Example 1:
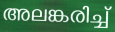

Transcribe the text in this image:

അലങ്കരിച്ച്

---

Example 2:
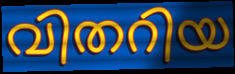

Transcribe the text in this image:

വിതറിയ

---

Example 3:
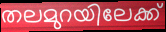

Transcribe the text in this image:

തലമുറയിലേക്ക്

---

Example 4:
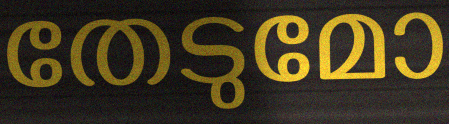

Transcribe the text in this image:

തേടുമോ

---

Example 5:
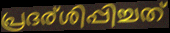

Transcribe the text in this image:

പ്രദര്ശിപ്പിച്ചത്